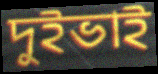
দুইভাই